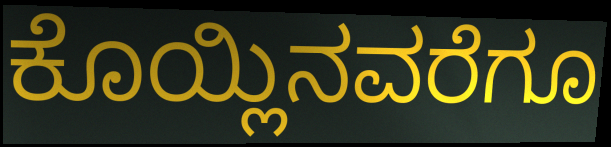
ಕೊಯ್ಲಿನವರೆಗೂ